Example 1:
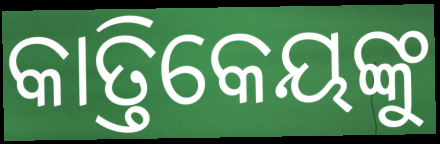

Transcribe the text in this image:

କାତ୍ତିକେୟଙ୍କୁ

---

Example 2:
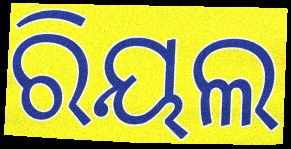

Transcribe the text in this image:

ରିୟଲ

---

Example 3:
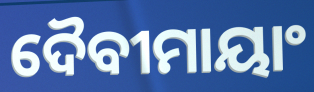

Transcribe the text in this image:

ଦୈବୀମାୟାଂ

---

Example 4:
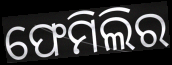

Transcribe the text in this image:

ଫେମିଲିର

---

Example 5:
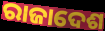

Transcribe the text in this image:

ରାଜାଦେଶ